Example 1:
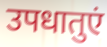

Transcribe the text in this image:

उपधातुएं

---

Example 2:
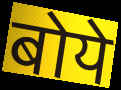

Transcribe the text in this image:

बोये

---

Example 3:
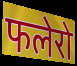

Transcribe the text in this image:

फलेरो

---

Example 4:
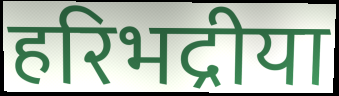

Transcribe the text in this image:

हरिभद्रीया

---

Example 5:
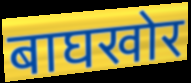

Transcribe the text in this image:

बाघखोर